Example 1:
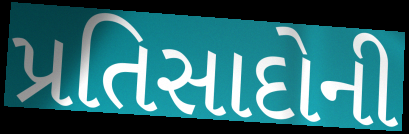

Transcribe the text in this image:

પ્રતિસાદોની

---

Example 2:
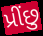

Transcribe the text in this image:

પ્રીંછુ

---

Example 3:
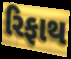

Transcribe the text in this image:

રિફાથ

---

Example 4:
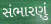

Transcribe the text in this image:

સંભારણું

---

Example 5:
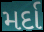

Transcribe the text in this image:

મર્દા